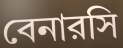
বেনারসি